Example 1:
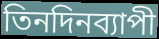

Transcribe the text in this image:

তিনদিনব্যাপী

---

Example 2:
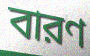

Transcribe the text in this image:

বারণ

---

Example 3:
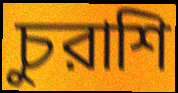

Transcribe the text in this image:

চুরাশি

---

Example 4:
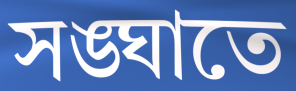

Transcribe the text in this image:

সঙ্ঘাতে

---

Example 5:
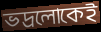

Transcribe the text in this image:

ভদ্রলোকেই